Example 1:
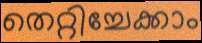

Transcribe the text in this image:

തെറ്റിച്ചേക്കാം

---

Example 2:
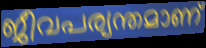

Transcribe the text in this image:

ജീവപര്യന്തമാണ്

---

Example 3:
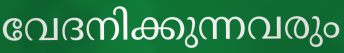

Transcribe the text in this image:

വേദനിക്കുന്നവരും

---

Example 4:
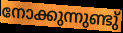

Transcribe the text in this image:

നോക്കുന്നുണ്ടു്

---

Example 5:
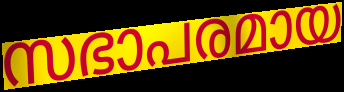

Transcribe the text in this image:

സഭാപരമായ